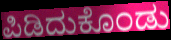
ಪಿಡಿದುಕೊಂಡು